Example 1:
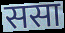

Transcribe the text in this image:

ससा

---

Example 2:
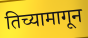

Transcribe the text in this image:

तिच्यामागून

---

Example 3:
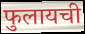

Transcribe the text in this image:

फुलायची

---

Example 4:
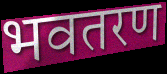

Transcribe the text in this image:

भवतरण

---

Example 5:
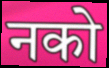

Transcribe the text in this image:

नको